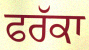
ਫਰੱਕਾ